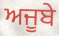
ਅਜੂਬੇ